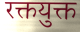
रक्तयुक्त